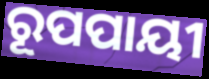
ରୂପପାୟୀ